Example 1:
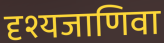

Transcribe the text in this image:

दृश्यजाणिवा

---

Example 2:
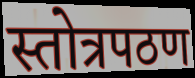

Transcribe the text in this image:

स्तोत्रपठण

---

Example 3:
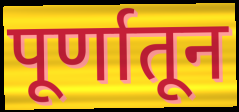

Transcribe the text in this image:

पूर्णातून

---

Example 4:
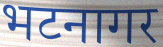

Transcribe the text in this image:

भटनागर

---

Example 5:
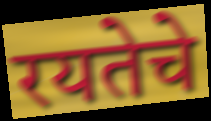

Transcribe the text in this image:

रयतेचे